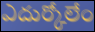
ఎదుర్కోలేం